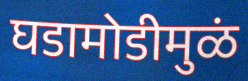
घडामोडीमुळं